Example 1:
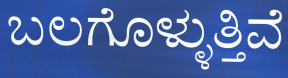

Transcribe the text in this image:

ಬಲಗೊಳ್ಳುತ್ತಿವೆ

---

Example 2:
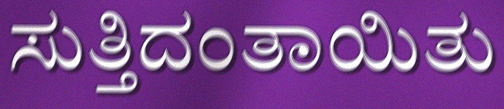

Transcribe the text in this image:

ಸುತ್ತಿದಂತಾಯಿತು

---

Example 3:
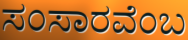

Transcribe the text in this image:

ಸಂಸಾರವೆಂಬ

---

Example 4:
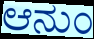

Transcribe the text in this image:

ಆನುಂ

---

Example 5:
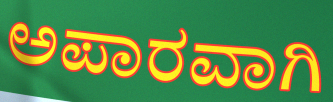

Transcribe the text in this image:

ಅಪಾರವಾಗಿ